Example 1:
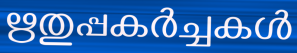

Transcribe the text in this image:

ഋതുപ്പകർച്ചകൾ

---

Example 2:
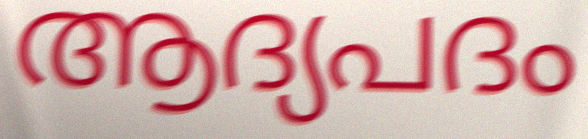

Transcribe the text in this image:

ആദ്യപദം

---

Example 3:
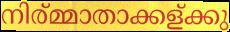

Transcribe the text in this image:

നിര്മ്മാതാക്കള്ക്കു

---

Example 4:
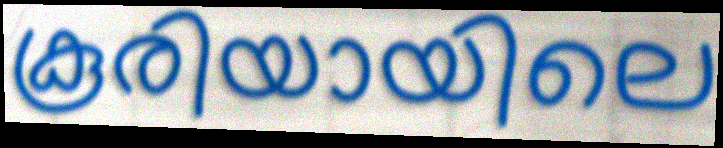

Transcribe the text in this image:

കൂരിയായിലെ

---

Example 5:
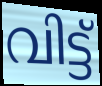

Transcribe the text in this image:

വിട്ട്